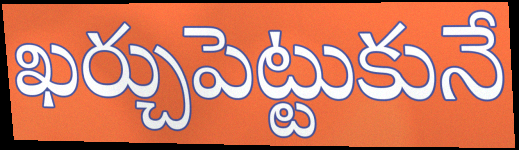
ఖర్చుపెట్టుకునే